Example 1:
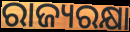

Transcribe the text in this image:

ରାଜ୍ୟରକ୍ଷା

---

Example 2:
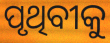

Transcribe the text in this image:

ପୃଥିବୀକୁ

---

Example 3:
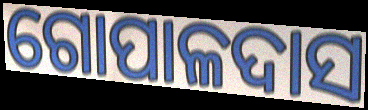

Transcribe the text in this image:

ଗୋପାଳଦାସ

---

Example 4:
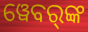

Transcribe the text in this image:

ୱେବର୍‌ଙ୍କ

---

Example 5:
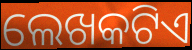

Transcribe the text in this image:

ଲେଖକଟିଏ